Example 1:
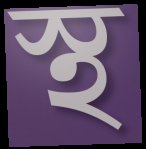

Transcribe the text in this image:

স্থ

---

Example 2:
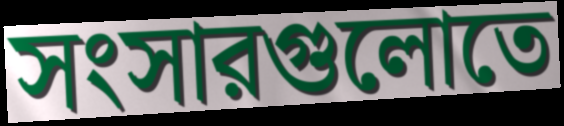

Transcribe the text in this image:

সংসারগুলোতে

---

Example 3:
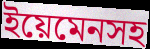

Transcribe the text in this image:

ইয়েমেনসহ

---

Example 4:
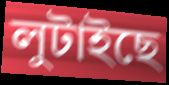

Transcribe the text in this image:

লুটাইছে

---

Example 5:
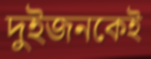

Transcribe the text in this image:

দুইজনকেই